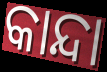
କାନ୍ଦା